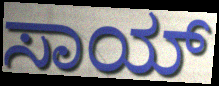
ಸಾಯ್